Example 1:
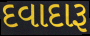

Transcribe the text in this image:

દવાદારૂ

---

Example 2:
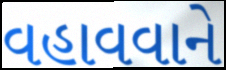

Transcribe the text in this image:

વહાવવાને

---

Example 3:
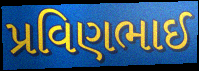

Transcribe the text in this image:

પ્રવિણભાઈ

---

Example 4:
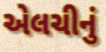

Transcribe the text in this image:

એલચીનું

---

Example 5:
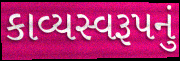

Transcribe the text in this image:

કાવ્યસ્વરૂપનું